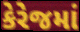
કેરેજમાં